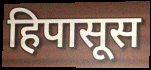
हिपासूस